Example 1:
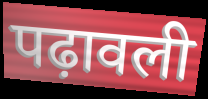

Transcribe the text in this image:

पढ़ावली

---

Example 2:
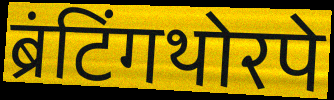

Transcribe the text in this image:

ब्रंटिंगथोरपे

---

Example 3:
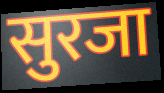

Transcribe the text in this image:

सुरजा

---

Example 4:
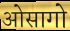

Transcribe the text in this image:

ओसागो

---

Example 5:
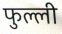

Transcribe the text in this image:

फुल्ली